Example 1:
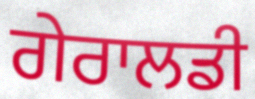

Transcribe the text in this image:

ਗੇਰਾਲਡੀ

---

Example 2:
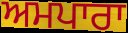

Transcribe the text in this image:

ਅਮਪਾਰਾ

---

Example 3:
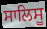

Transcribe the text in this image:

ਸਾਲਿਸੂ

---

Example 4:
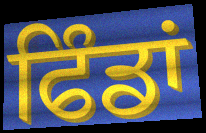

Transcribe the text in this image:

ਫਿੰਡਾਂ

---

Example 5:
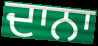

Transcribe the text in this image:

ਦਾਨਾ